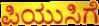
ಪಿಯುಸಿಗೆ